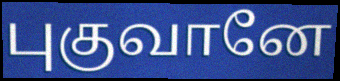
புகுவானே